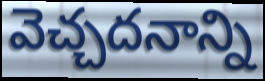
వెచ్చదనాన్ని